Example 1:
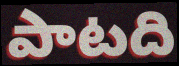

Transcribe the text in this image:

పాటది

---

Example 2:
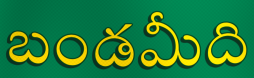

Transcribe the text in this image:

బండమీది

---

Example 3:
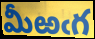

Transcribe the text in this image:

మీఱఁగ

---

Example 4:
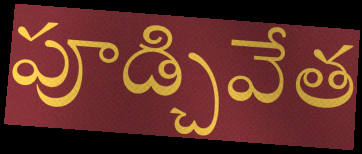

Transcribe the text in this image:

పూడ్చివేత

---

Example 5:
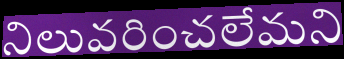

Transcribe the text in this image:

నిలువరించలేమని